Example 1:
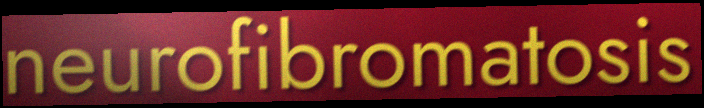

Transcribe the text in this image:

neurofibromatosis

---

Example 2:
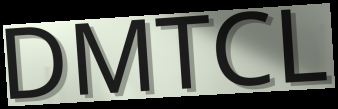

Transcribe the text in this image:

DMTCL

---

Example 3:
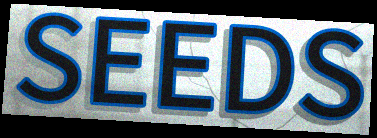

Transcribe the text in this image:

SEEDS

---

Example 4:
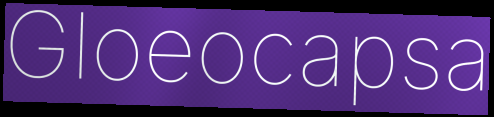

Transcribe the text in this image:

Gloeocapsa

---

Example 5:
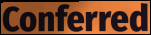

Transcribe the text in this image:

Conferred